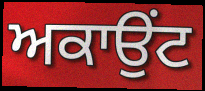
ਅਕਾਉਂਟ